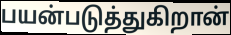
பயன்படுத்துகிறான்